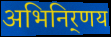
अभिनिर्णय